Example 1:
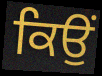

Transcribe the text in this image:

ਕਿਉੰ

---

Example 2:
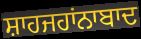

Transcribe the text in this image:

ਸ਼ਾਹਜਹਾਂਨਾਬਾਦ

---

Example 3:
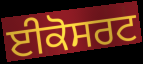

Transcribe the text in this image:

ਈਕੋਸਰਟ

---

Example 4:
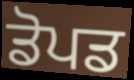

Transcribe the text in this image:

ਡੋਪਡ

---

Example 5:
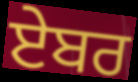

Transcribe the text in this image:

ਏਬਰ